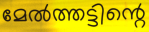
മേൽത്തട്ടിന്റെ